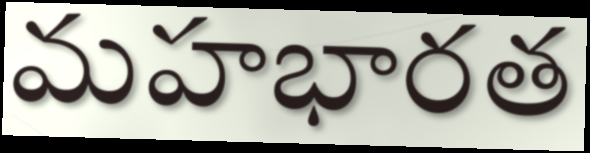
మహభారత